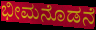
ಭೀಮನೊಡನೆ